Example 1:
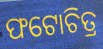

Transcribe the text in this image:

ଫଟୋଚିତ୍ର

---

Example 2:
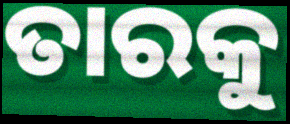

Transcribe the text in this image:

ତାରକୁ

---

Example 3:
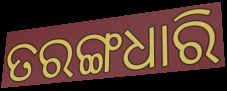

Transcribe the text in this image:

ତରଙ୍ଗଧାରି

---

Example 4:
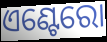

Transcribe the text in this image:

ଏଣ୍ଟେରୋ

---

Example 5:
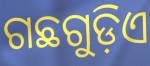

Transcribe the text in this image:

ଗଛଗୁଡ଼ିଏ